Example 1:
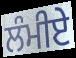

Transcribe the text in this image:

ਲੰਮੀਏ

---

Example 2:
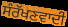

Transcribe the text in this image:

ਸੰਰੱਖਣਵਾਦੀ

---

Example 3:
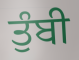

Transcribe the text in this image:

ਤੁੰਬੀ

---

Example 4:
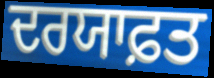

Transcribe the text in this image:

ਦਰਯਾਫ਼ਤ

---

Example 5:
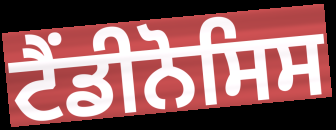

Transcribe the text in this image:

ਟੈਂਡੀਨੋਸਿਸ